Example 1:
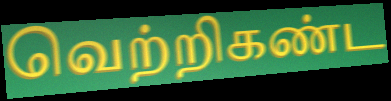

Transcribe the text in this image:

வெற்றிகண்ட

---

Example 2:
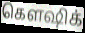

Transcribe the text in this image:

கௌஷிக்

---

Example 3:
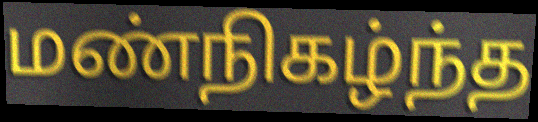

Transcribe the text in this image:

மண்நிகழ்ந்த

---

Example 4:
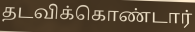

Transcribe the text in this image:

தடவிக்கொண்டார்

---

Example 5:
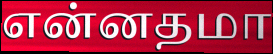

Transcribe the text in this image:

என்னதமா